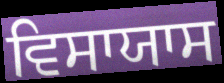
ਵਿਸਾਯਾਸ